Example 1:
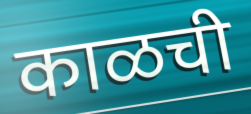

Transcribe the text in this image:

काळची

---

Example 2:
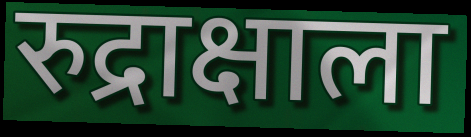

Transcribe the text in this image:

रुद्राक्षाला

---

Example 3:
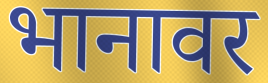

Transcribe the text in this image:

भानावर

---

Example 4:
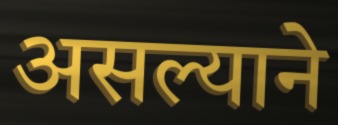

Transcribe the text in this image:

असल्‍याने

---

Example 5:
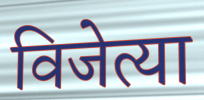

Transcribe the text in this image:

विजेत्या